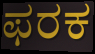
ಫರಕ